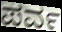
ಪರ್ವ